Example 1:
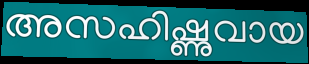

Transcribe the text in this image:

അസഹിഷ്ണുവായ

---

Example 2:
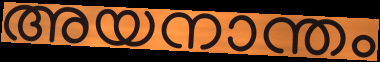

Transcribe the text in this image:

അയനാന്തം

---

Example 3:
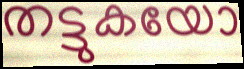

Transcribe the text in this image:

തട്ടുകയോ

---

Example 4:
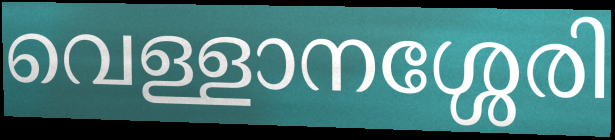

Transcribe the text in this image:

വെള്ളാനശ്ശേരി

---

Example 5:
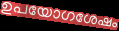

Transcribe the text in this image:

ഉപയോഗശേഷം